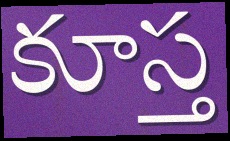
కూస్త